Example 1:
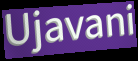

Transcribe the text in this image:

Ujavani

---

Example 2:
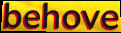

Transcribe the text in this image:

behove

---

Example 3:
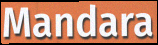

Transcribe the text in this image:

Mandara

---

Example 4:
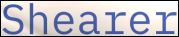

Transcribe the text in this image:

Shearer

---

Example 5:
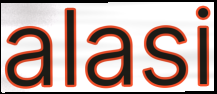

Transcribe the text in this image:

alasi